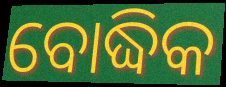
ବୋଦ୍ଧିକ